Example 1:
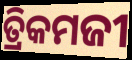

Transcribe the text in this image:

ତ୍ରିକମଜୀ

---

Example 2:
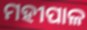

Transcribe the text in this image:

ମହୀପାଳ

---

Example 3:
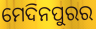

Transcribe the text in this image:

ମେଦିନପୁରର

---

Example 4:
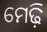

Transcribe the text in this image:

ମେଢ଼ି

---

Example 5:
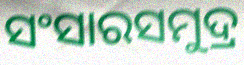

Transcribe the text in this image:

ସଂସାରସମୁଦ୍ର